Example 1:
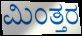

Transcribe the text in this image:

ಮಿಂತ್ತರ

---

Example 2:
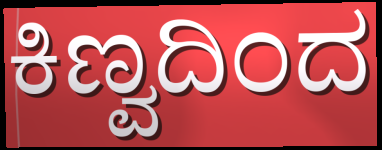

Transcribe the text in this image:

ಕಿಣ್ವದಿಂದ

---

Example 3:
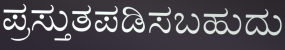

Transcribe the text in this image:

ಪ್ರಸ್ತುತಪಡಿಸಬಹುದು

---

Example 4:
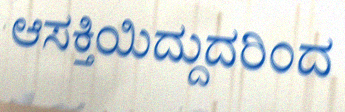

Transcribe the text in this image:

ಆಸಕ್ತಿಯಿದ್ದುದರಿಂದ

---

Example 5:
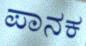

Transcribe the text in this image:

ಪಾನಕ